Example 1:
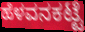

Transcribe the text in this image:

ಹೆಳವನಕಟ್ಟೆ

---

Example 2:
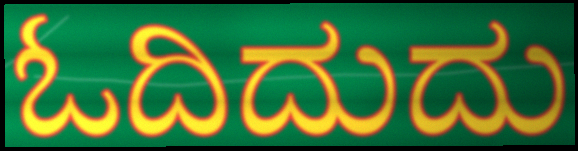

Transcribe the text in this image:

ಓದಿದುದು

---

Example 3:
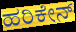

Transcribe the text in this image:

ಹರಿಕೇನ್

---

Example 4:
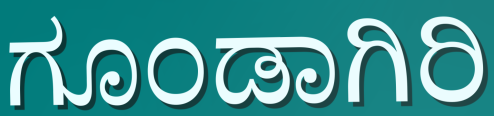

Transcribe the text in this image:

ಗೂಂಡಾಗಿರಿ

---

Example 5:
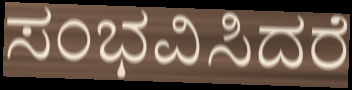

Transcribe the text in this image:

ಸಂಭವಿಸಿದರೆ